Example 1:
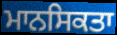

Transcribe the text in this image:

ਮਾਨਸਿਕਤਾ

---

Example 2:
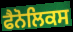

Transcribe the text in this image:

ਫੈਨੋਲਿਕਸ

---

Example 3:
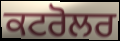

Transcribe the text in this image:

ਕਟਰੋਲਰ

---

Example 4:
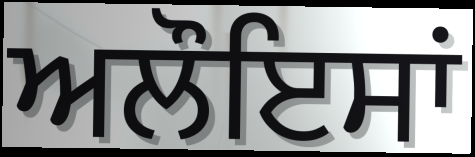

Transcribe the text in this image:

ਅਲੌਇਸਾਂ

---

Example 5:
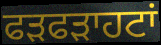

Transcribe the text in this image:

ਫੜਫੜਾਹਟਾਂ